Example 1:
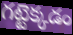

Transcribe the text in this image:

గట్టెక్కడం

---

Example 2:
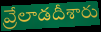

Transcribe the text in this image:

వ్రేలాడదీశారు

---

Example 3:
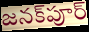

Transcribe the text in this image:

జనక్‌పూర్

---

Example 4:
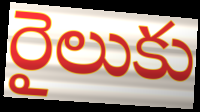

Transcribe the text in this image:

రైలుకు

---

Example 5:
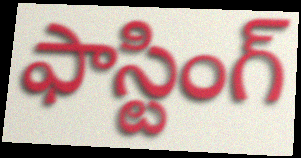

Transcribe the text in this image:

ఫాస్టింగ్